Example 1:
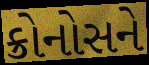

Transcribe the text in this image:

ક્રોનોસને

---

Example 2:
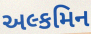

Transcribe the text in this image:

અલ્કમિન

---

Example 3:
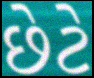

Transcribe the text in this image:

છેટે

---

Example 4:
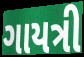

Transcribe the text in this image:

ગાયત્રી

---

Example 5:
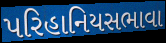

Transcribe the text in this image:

પરિહાનિયસભાવા